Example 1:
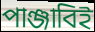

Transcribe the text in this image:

পাঞ্জাবিই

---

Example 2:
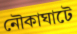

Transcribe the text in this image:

নৌকাঘাটে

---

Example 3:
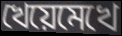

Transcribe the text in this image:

খেয়েমেখে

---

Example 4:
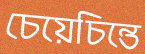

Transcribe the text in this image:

চেয়েচিন্তে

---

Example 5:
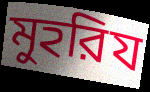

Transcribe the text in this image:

মুহরিয